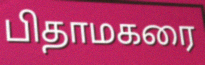
பிதாமகரை